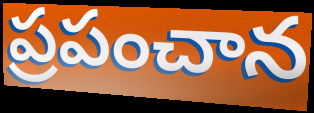
ప్రపంచాన